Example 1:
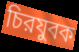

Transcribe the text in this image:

চিরযুবক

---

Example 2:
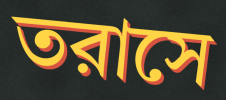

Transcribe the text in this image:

তরাসে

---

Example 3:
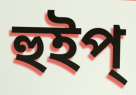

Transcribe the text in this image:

হুইপ্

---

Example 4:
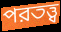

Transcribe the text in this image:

পরতত্ত্ব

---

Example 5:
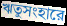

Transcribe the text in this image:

ঋতুসংহারে